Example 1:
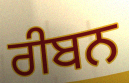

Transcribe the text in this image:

ਰੀਬਨ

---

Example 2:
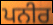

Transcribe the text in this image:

ਪਨੀਰ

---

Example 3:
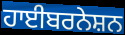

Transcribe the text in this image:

ਹਾਈਬਰਨੇਸ਼ਨ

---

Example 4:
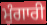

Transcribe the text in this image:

ਮੁੰਗਾਰੀ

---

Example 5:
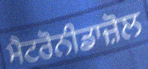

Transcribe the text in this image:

ਮੈਟਰੋਨੀਡਾਜ਼ੋਲ